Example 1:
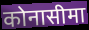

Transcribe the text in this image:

कोनासीमा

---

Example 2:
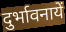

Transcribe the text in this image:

दुर्भावनायें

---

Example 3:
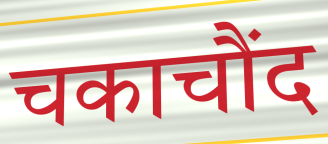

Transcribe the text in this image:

चकाचौंद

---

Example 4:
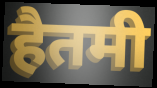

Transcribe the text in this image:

हैतमी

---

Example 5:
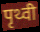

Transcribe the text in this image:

पृथ्वी